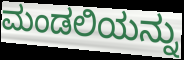
ಮಂಡಲಿಯನ್ನು